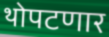
थोपटणार